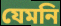
যেমনি